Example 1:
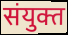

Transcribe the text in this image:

संयुक्‍त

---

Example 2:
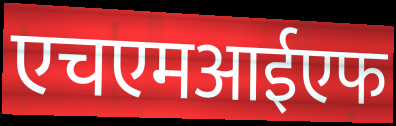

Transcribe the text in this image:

एचएमआईएफ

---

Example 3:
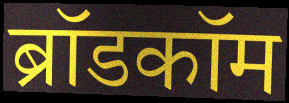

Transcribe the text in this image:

ब्रॉडकॉम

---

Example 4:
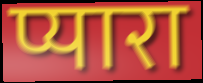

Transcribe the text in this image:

प्‍यारा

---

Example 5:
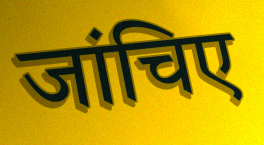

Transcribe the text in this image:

जांचिए